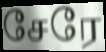
சேரே